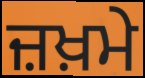
ਜ਼ਖ਼ਮੇ